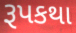
રૂપકથા